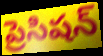
ప్రెసిషన్